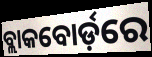
ବ୍ଲାକବୋର୍ଡ଼ରେ